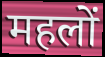
महलों